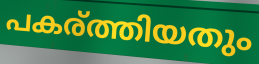
പകര്ത്തിയതും